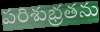
పరిశుభ్రతను